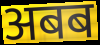
अबब